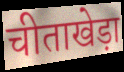
चीताखेड़ा